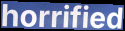
horrified